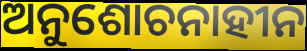
ଅନୁଶୋଚନାହୀନ